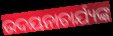
ଉଦୟନାଚାର୍ଯ୍ୟଙ୍କ